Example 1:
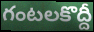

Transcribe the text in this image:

గంటలకొద్దీ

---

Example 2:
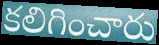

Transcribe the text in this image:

కలిగించారు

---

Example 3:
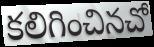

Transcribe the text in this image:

కలిగించినచో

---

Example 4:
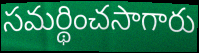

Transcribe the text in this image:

సమర్థించసాగారు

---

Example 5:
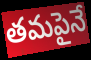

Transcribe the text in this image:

తమపైనే